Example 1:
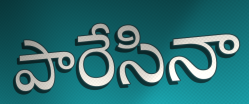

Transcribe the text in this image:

పారేసినా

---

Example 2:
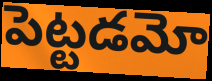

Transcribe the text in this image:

పెట్టడమో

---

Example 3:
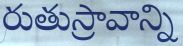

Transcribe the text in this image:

రుతుస్రావాన్ని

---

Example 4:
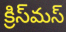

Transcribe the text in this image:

క్రిస్‌మస్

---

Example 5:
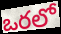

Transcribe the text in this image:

ఒరలో